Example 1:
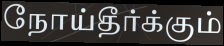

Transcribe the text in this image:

நோய்தீர்க்கும்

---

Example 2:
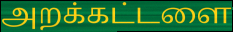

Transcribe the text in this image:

அறக்கட்டளை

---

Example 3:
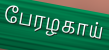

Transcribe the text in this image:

பேரழகாய்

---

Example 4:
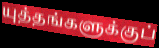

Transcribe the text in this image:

யுத்தங்களுக்குப்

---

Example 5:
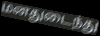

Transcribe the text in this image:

மனதுடைந்து